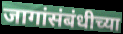
जागांसंबंधीच्या